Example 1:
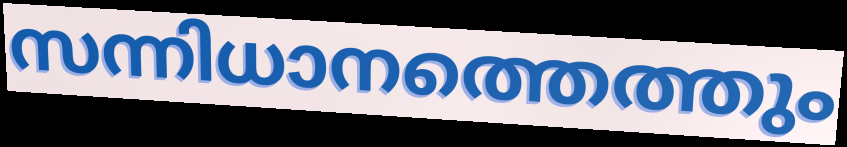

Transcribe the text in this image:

സന്നിധാനത്തെത്തും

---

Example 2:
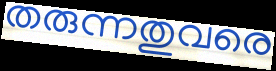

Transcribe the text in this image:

തരുന്നതുവരെ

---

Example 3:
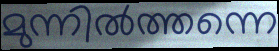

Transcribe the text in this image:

മുന്നിൽത്തന്നെ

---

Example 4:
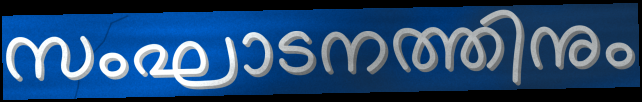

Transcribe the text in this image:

സംഘാടനത്തിനും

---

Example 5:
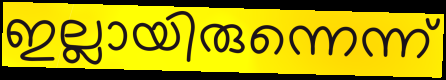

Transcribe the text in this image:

ഇല്ലായിരുന്നെന്ന്